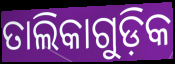
ତାଲିକାଗୁଡ଼ିକ